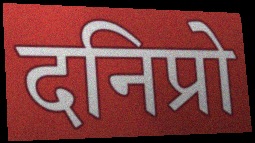
दनिप्रो